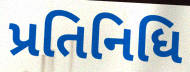
પ્રતિનિધિ